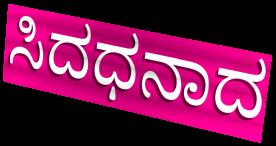
ಸಿದಧನಾದ